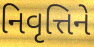
નિવૃત્તિને